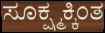
ಸೂಕ್ಷ್ಮಕ್ಕಿಂತ